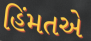
હિંમતએ